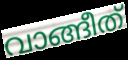
വാങ്ങീത്